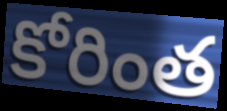
కోరింత